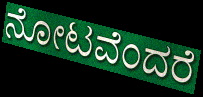
ನೋಟವೆಂದರೆ